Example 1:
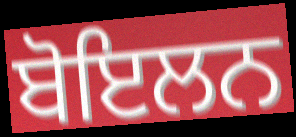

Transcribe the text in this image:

ਬੋਇਲਨ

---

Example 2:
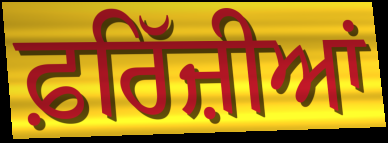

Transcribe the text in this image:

ਫ਼ਰਿੱਜ਼ੀਆਂ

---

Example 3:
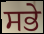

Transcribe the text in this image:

ਸਭੇ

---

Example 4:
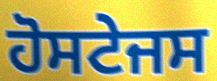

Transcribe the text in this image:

ਹੋਸਟੇਜਸ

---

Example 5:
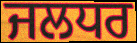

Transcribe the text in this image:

ਜਲਧਰ